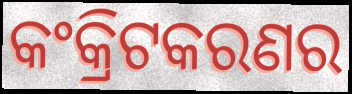
କଂକ୍ରିଟକରଣର